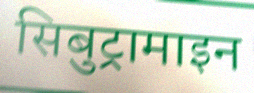
सिबुट्रामाइन